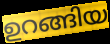
ഉറങ്ങിയ